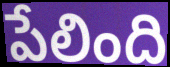
పేలింది